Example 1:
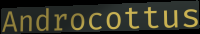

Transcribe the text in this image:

Androcottus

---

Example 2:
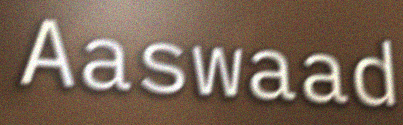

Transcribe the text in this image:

Aaswaad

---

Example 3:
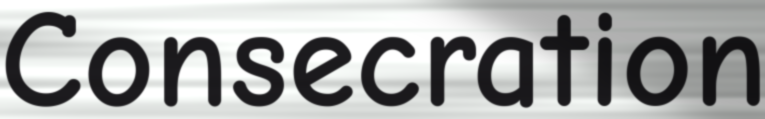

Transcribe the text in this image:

Consecration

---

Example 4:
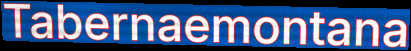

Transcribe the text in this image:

Tabernaemontana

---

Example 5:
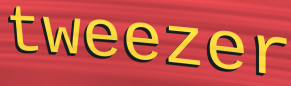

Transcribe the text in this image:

tweezer